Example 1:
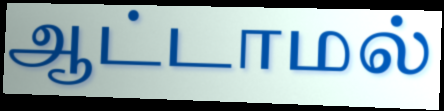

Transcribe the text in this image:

ஆட்டாமல்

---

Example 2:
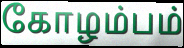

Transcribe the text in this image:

கோழம்பம்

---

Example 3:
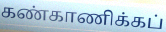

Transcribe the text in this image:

கண்காணிக்கப்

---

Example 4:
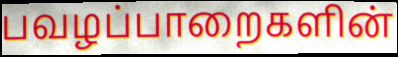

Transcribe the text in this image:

பவழப்பாறைகளின்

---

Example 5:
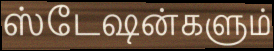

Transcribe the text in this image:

ஸ்டேஷன்களும்